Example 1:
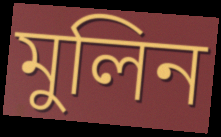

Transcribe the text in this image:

মুলিন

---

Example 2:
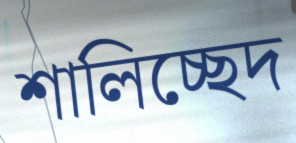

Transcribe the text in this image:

শালিচ্ছেদ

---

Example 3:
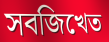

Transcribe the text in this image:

সবজিখেত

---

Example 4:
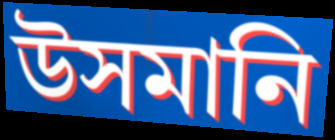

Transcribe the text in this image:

উসমানি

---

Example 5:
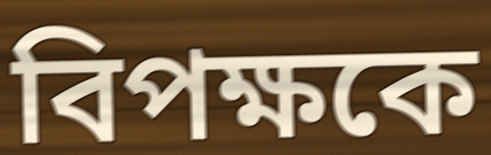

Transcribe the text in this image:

বিপক্ষকে